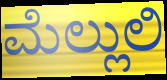
ಮೆಲ್ಲುಲಿ